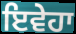
ਇਵੇਹਾ